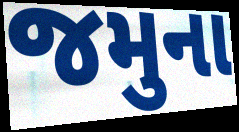
જમુના